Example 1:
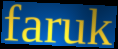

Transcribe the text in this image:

faruk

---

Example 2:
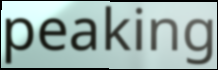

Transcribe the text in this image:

peaking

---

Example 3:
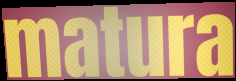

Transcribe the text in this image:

matura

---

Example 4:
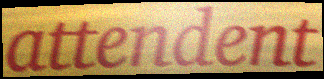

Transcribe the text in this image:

attendent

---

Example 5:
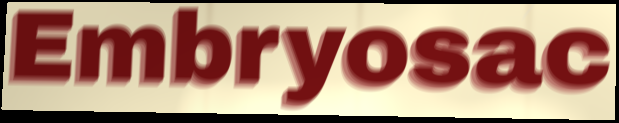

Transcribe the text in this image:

Embryosac